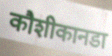
कौशीकानडा